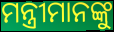
ମନ୍ତ୍ରୀମାନଙ୍କୁ